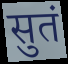
सुतं